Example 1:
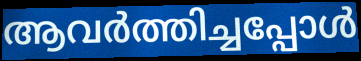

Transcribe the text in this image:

ആവർത്തിച്ചപ്പോൾ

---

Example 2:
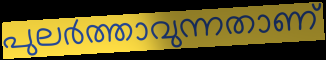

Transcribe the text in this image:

പുലർത്താവുന്നതാണ്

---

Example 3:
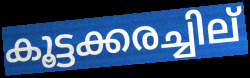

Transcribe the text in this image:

കൂട്ടക്കരച്ചില്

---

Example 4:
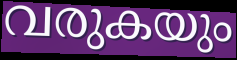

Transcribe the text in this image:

വരുകയും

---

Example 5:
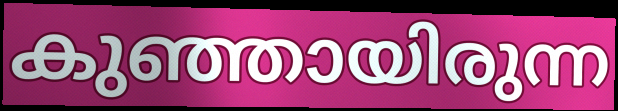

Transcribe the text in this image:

കുഞ്ഞായിരുന്ന